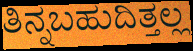
ತಿನ್ನಬಹುದಿತ್ತಲ್ಲ